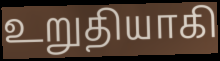
உறுதியாகி